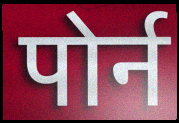
पोर्न